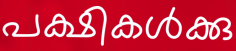
പക്ഷികൾക്കു